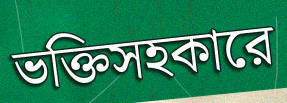
ভক্তিসহকারে